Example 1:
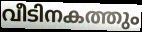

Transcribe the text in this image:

വീടിനകത്തും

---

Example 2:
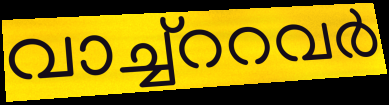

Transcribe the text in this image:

വാച്ച്ററവർ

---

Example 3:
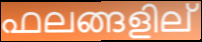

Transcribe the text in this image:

ഫലങ്ങളില്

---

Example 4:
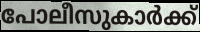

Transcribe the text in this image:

പോലീസുകാർക്ക്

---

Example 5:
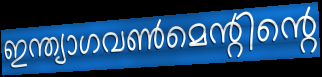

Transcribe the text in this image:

ഇന്ത്യാഗവൺമെന്റിന്റെ